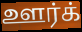
ஊர்க்